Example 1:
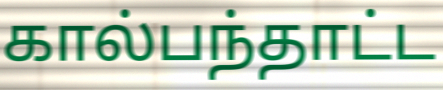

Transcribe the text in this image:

கால்பந்தாட்ட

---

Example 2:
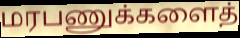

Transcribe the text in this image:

மரபணுக்களைத்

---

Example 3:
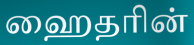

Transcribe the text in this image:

ஹைதரின்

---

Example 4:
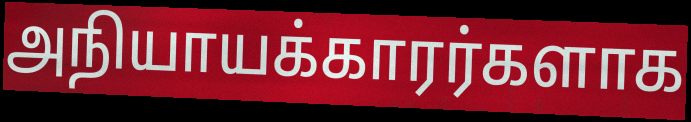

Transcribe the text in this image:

அநியாயக்காரர்களாக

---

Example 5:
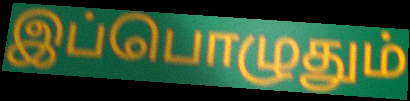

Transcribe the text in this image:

இப்பொழுதும்